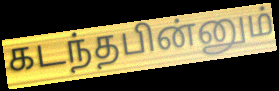
கடந்தபின்னும்